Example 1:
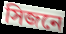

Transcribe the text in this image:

সিজনে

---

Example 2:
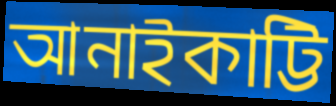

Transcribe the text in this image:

আনাইকাট্টি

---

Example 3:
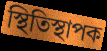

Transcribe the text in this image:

স্থিতিস্থাপক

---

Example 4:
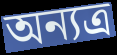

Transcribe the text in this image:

অন্যত্ৰ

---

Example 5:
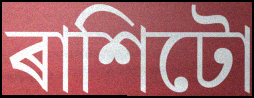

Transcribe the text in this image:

ৰাশিটো